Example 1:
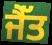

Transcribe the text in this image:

ਜੈੱਤ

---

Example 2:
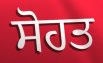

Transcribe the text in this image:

ਸੋਹਤ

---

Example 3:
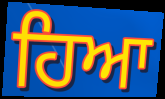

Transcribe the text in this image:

ਹਿਆ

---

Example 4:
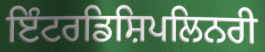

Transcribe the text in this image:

ਇੰਟਰਡਿਸ਼ਿਪਲਿਨਰੀ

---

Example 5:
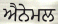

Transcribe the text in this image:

ਐਨੇਮਲ